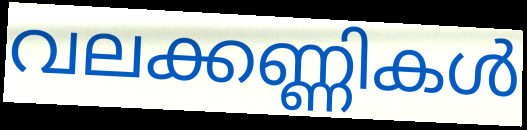
വലക്കണ്ണികൾ